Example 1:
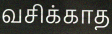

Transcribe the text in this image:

வசிக்காத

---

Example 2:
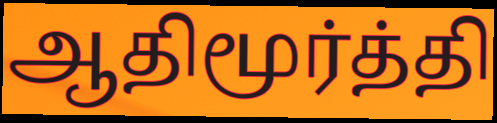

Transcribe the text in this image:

ஆதிமூர்த்தி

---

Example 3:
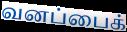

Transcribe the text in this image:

வனப்பைக்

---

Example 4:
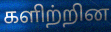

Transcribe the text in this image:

களிற்றின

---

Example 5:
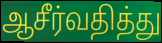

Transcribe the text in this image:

ஆசீர்வதித்து